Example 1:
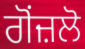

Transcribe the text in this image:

ਗੋਂਜ਼ਲੋ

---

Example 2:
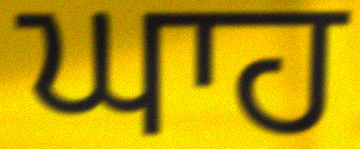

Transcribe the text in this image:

ਘਾਹ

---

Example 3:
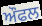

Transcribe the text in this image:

ਔਫਲ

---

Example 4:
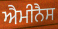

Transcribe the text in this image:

ਐਮੀਨੈਸ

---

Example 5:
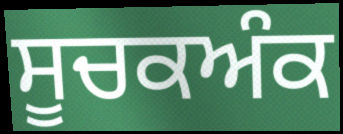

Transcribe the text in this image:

ਸੂਚਕਅੰਕ